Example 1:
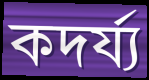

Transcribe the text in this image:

কদর্য্য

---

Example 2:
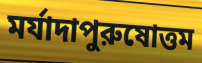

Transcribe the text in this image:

মর্যাদাপুরুষোত্তম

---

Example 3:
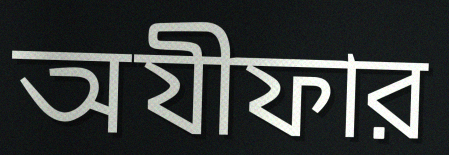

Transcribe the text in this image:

অযীফার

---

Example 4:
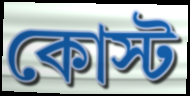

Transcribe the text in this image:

কোস্ট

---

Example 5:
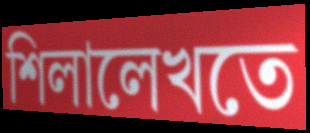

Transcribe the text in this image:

শিলালেখতে